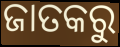
ଜାତକରୁ